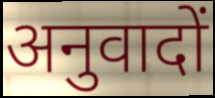
अनुवादों